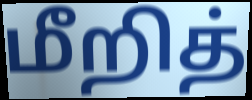
மீறித்